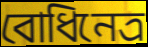
বোধিনেত্ৰ